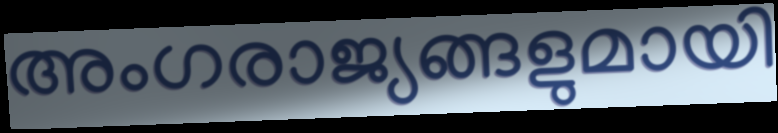
അംഗരാജ്യങ്ങളുമായി